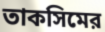
তাকসিমের